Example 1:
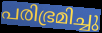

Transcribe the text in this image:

പരിഭ്രമിച്ചു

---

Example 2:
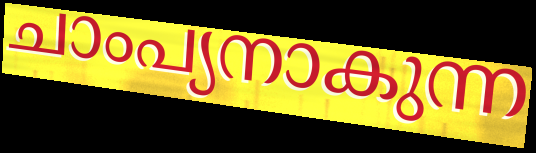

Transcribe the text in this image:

ചാംപ്യനാകുന്ന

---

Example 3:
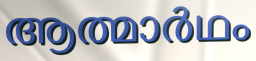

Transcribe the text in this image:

ആത്മാർഥം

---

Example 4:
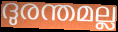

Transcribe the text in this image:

ദുരന്തമല്ല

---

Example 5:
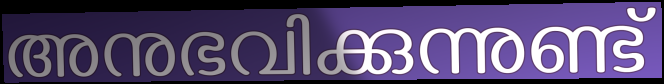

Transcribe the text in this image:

അനുഭവിക്കുന്നുണ്ട്